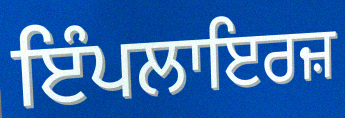
ਇੰਪਲਾਇਰਜ਼